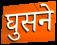
घुसने